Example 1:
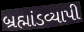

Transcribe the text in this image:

બ્રહ્માંડવ્યાપી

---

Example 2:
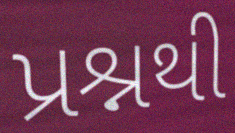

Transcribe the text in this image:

પ્રશ્નથી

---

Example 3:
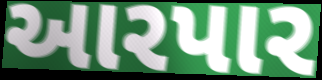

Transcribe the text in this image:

આરપાર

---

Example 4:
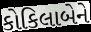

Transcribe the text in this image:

કોકિલાબેને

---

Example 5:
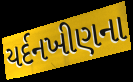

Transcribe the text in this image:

યર્દનખીણના